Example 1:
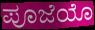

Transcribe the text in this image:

ಪೂಜೆಯೊ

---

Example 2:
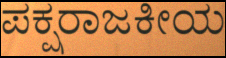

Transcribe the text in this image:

ಪಕ್ಷರಾಜಕೀಯ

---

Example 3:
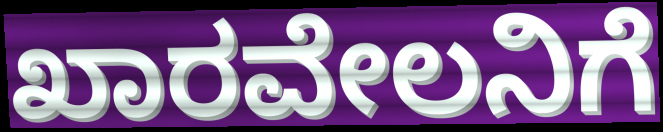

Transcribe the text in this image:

ಖಾರವೇಲನಿಗೆ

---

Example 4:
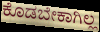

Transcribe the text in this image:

ಕೊಡಬೇಕಾಗಿಲ್ಲ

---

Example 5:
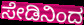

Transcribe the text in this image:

ಸೇಡಿನಿಂದ